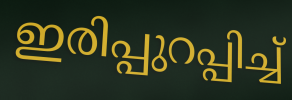
ഇരിപ്പുറപ്പിച്ച്